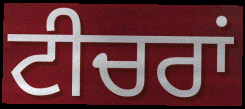
ਟੀਚਰਾਂ